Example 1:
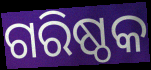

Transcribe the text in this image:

ଗରିଷ୍ଠକ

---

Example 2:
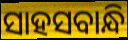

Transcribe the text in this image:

ସାହସବାନ୍ଧି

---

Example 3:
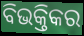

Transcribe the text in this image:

ବିଭକ୍ତିକର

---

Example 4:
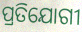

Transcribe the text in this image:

ପ୍ରତିଯୋଗୀ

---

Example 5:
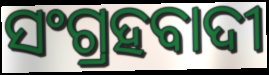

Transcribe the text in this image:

ସଂଗ୍ରହବାଦୀ